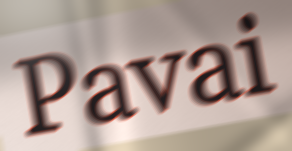
Pavai